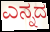
ಎನ್ನದ